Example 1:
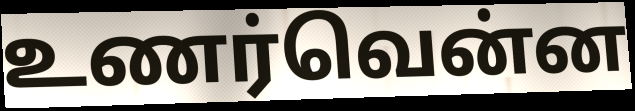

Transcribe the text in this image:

உணர்வென்ன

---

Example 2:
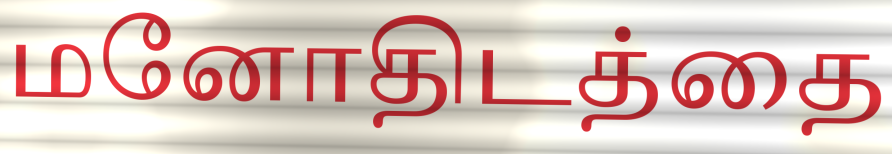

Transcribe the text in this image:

மனோதிடத்தை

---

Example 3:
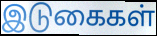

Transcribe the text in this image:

இடுகைகள்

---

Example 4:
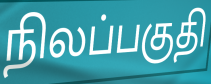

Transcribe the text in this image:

நிலப்பகுதி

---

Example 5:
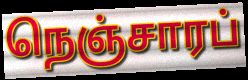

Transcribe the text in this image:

நெஞ்சாரப்